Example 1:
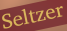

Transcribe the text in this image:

Seltzer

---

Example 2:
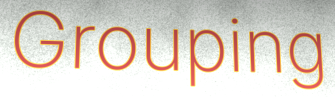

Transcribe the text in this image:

Grouping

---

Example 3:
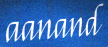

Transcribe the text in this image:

aanand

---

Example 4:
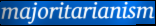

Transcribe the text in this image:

majoritarianism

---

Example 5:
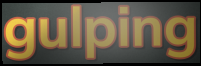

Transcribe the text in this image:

gulping